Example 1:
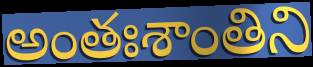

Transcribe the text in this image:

అంతఃశాంతిని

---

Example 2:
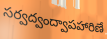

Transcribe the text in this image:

సర్వద్వంద్వాపహారిణే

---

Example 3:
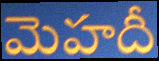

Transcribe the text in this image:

మెహదీ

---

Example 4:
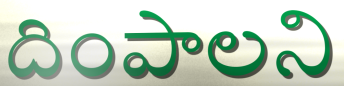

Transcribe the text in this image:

దింపాలని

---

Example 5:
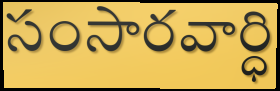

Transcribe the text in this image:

సంసారవార్ధి